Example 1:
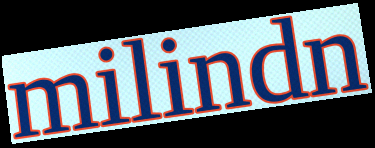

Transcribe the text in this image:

milindn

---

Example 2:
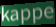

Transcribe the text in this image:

kappe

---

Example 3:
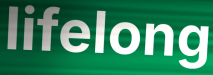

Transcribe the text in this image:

lifelong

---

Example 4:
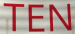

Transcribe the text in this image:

TEN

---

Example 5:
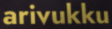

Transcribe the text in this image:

arivukku